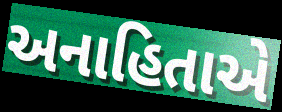
અનાહિતાએ